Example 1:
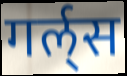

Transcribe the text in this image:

गर्ल्स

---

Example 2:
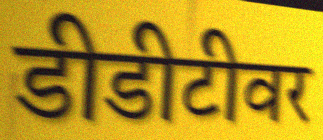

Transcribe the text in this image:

डीडीटीवर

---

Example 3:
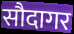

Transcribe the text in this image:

सौदागर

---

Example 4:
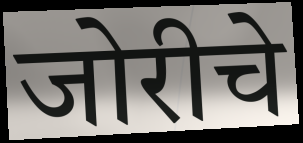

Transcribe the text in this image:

जोरीचे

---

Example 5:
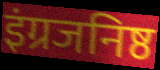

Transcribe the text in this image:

इंग्रजनिष्ठ